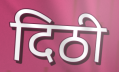
दिठी